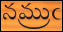
నమ్రుఁ